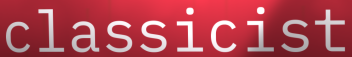
classicist